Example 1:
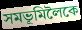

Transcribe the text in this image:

সমভূমিলৈকে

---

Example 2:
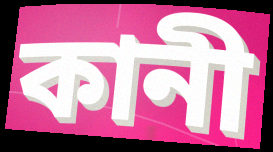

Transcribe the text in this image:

কানী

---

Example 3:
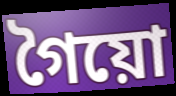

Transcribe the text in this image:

গৈয়ো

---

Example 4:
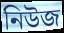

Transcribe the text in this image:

নিউজ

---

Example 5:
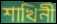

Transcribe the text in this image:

শাখিনী